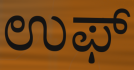
ಉಫ್